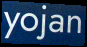
yojan